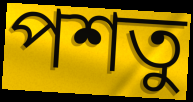
পশতু